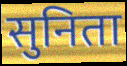
सुनिता